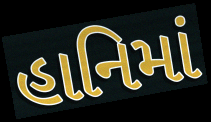
હાનિમાં